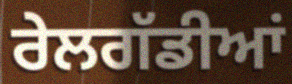
ਰੇਲਗੱਡੀਆਂ